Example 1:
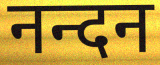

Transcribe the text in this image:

नन्दन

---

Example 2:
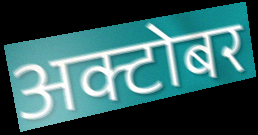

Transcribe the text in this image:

अक्टोबर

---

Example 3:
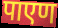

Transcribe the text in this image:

पाएण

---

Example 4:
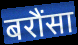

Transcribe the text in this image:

बरौंसा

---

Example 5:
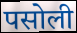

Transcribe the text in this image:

पसोली